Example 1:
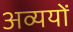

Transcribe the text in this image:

अव्ययों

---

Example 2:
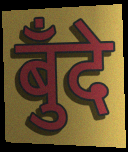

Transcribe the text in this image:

बुँदे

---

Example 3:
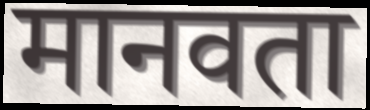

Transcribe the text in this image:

मानवता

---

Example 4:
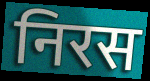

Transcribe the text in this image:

निरस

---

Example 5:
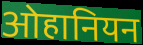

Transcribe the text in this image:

ओहानियन